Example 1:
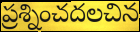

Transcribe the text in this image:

ప్రశ్నించదలచిన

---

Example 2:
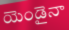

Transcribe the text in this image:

యెండైనా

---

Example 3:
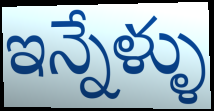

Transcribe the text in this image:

ఇన్నేళ్ళు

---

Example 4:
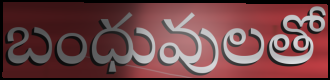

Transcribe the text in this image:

బంధువులతో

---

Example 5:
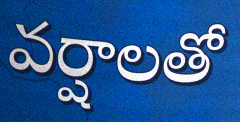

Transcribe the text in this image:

వర్షాలతో